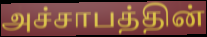
அச்சாபத்தின்